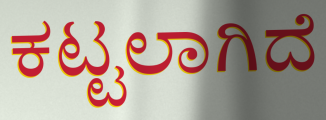
ಕಟ್ಟಲಾಗಿದೆ